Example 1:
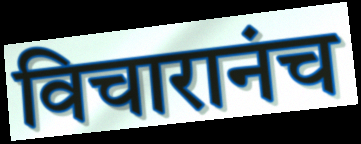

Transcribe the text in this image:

विचारानंच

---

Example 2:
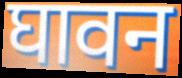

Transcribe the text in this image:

घावन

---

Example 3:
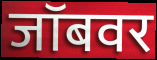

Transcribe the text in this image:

जॉबवर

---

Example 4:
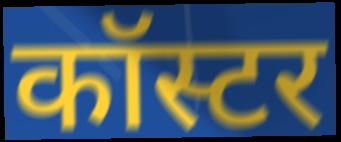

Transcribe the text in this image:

कॉस्टर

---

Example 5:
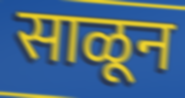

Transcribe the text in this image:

साळून